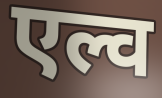
एल्व